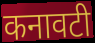
कनावटी